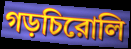
গড়চিরোলি